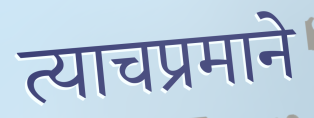
त्याचप्रमाने